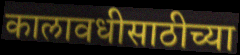
कालावधीसाठीच्या